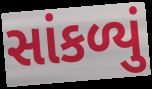
સાંકળ્યું